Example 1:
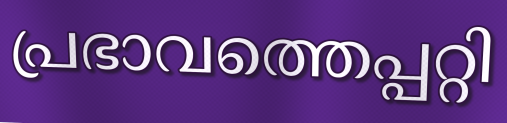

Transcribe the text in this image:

പ്രഭാവത്തെപ്പറ്റി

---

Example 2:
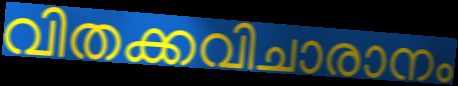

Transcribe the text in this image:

വിതക്കവിചാരാനം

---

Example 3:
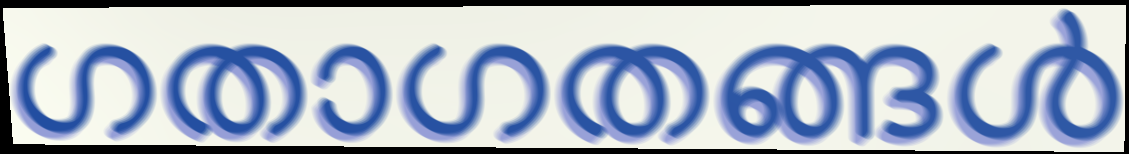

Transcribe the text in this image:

ഗതാഗതങ്ങൾ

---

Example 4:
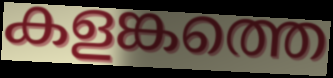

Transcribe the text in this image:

കളങ്കത്തെ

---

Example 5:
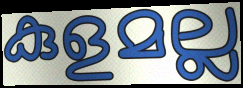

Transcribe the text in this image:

കുളമല്ല